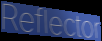
Reflector